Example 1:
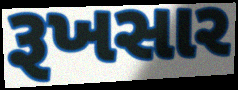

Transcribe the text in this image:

રૂખસાર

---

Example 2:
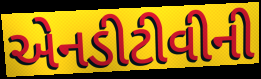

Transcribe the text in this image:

એનડીટીવીની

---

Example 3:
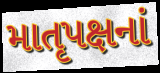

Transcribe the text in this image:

માતૃપક્ષનાં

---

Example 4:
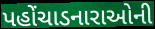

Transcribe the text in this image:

પહોંચાડનારાઓની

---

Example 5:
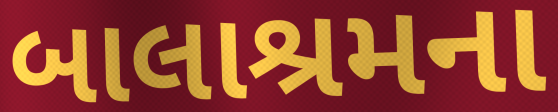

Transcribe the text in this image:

બાલાશ્રમના